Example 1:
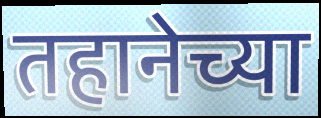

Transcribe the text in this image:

तहानेच्या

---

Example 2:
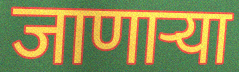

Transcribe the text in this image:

जाणार्‍या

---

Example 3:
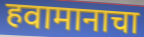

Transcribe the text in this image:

हवामानाचा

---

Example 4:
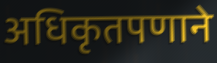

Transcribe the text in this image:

अधिकृतपणाने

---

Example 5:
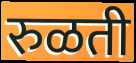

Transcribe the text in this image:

रुळती